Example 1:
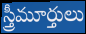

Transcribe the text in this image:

స్త్రీమూర్తులు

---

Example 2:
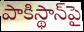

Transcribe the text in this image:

పాకిస్థాన్‌పై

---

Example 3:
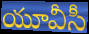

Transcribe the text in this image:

యూవీసీ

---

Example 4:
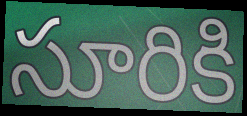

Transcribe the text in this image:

సూరికి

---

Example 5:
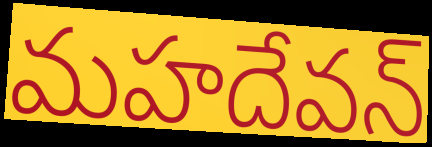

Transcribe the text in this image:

మహదేవన్